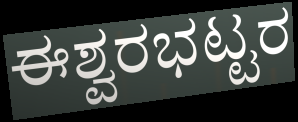
ಈಶ್ವರಭಟ್ಟರ